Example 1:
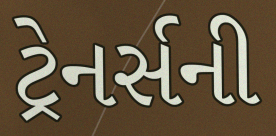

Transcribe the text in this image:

ટ્રેનર્સની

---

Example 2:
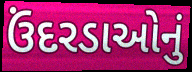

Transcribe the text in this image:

ઉંદરડાઓનું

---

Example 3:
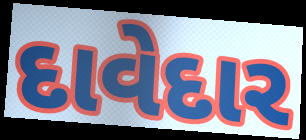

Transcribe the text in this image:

દાવેદાર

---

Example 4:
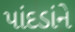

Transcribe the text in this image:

પાંદડાંને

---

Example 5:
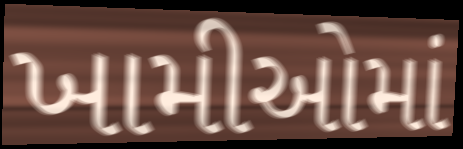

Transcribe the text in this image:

ખામીઓમાં